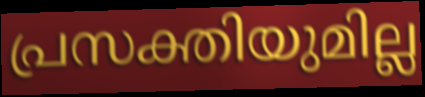
പ്രസക്തിയുമില്ല